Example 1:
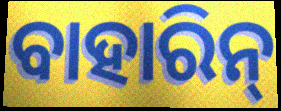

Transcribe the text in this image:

ବାହାରିନ୍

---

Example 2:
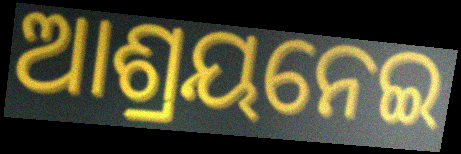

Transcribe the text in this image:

ଆଶ୍ରୟନେଇ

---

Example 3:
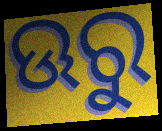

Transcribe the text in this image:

ଊରୁ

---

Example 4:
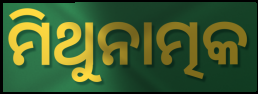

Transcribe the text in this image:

ମିଥୁନାତ୍ମକ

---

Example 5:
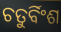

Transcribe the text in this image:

ଚତୁର୍ବିଂଶ